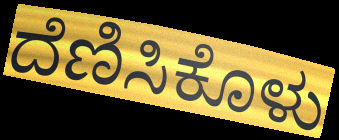
ದೆಣಿಸಿಕೊಳು